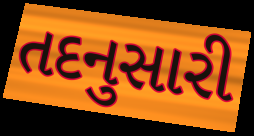
તદનુસારી